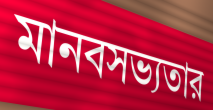
মানবসভ্যতার